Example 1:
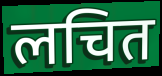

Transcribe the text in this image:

लचित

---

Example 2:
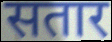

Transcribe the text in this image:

सतार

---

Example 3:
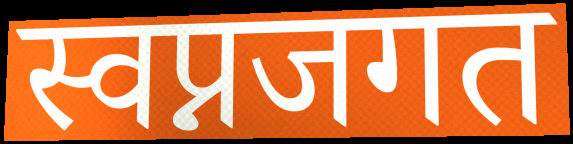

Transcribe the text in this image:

स्वप्नजगत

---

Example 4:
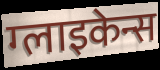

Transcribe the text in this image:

ग्लाइकेन्स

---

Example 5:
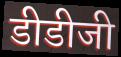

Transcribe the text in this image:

डीडीजी